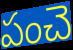
పంచె